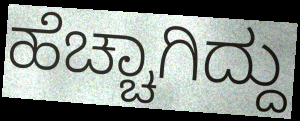
ಹೆಚ್ಚಾಗಿದ್ದು